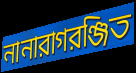
নানারাগরঞ্জিত